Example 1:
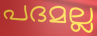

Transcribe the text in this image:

പദമല്ല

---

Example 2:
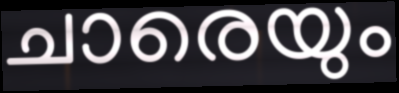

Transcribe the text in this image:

ചാരെയും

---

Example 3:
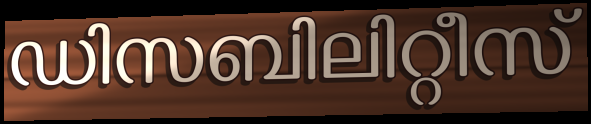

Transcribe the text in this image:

ഡിസബിലിറ്റീസ്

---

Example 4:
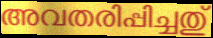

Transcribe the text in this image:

അവതരിപ്പിച്ചതു്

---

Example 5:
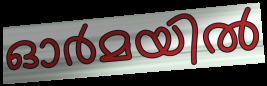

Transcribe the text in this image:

ഓർമയിൽ